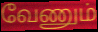
வேணும்